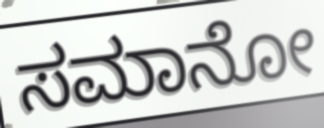
ಸಮಾನೋ